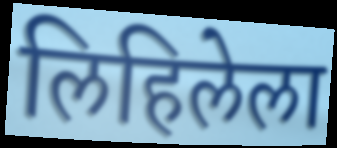
लिहिलेला